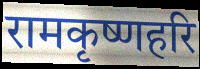
रामकृष्णहरि